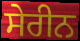
ਸੇਰੀਨ